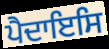
ਪੈਦਾਇਸਿ